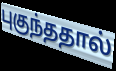
புகுந்ததால்